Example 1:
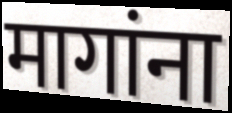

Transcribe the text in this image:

मागांना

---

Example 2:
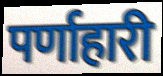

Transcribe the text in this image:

पर्णाहारी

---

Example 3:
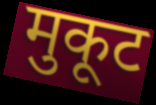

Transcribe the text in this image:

मुकूट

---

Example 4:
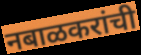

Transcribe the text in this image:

नबाळकरांची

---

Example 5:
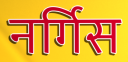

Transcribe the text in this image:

नर्गिस